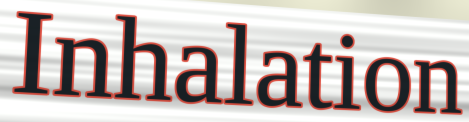
Inhalation